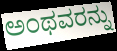
ಅಂಥವರನ್ನು